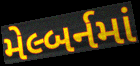
મેલ્બર્નમાં